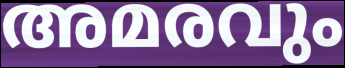
അമരവും